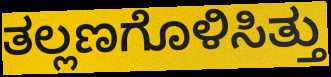
ತಲ್ಲಣಗೊಳಿಸಿತ್ತು